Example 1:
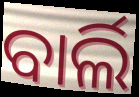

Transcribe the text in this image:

ବାର୍ଲି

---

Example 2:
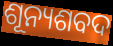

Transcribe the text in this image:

ଶୂନ୍ୟଶବଦ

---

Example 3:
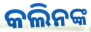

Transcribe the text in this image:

କଲିନଙ୍କ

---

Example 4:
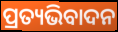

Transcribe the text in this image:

ପ୍ରତ୍ୟଭିବାଦନ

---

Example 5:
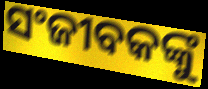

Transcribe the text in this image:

ସଂଜୀବକଙ୍କୁ